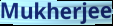
Mukherjee